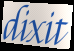
dixit